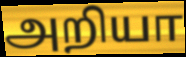
அறியா